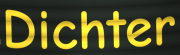
Dichter